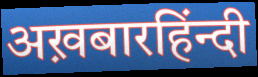
अख़बारहिंन्दी